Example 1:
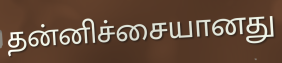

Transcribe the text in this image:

தன்னிச்சையானது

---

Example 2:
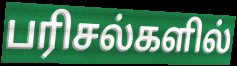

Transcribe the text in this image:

பரிசல்களில்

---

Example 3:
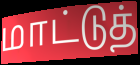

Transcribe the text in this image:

மாட்டுத்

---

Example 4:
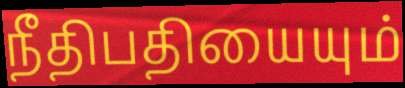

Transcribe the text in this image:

நீதிபதியையும்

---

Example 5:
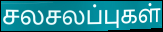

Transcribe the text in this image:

சலசலப்புகள்